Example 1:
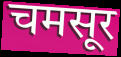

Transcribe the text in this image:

चमसूर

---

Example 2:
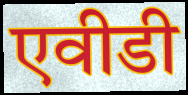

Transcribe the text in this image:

एवीडी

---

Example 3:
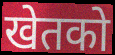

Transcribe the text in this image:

खेतको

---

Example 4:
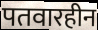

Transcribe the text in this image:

पतवारहीन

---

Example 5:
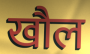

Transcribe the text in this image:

खौल